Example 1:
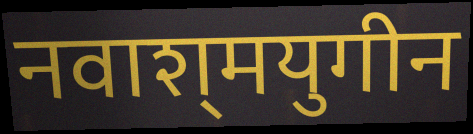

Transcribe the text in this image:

नवाश्मयुगीन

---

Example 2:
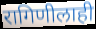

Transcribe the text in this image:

रागिणीलाही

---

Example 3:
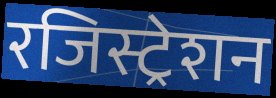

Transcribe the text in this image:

रजिस्ट्रेशन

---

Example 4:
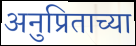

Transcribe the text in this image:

अनुप्रिताच्या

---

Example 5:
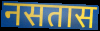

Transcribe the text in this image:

नसतास